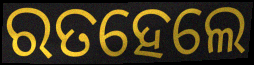
ରତହେଲେ